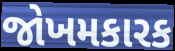
જોખમકારક